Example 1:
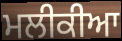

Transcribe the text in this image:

ਮਲੀਕੀਆ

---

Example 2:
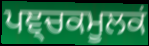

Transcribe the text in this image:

ਪਞ੍ਚਕਮੂਲਕਂ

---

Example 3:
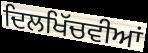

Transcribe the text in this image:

ਦਿਲਖਿੱਚਵੀਆਂ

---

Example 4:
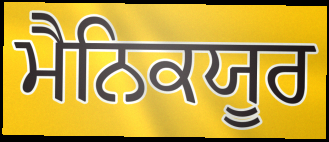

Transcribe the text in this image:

ਮੈਨਿਕਯੂਰ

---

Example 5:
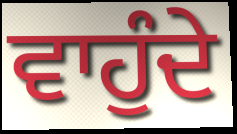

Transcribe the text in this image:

ਵਾਹੁੰਦੇ